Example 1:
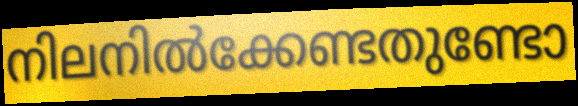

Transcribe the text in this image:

നിലനിൽക്കേണ്ടതുണ്ടോ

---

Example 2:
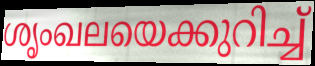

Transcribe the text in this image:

ശൃംഖലയെക്കുറിച്ച്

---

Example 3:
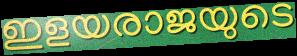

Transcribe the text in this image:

ഇളയരാജയുടെ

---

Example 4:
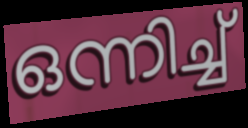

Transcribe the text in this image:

ഒന്നിച്ച്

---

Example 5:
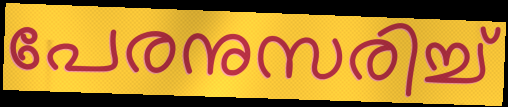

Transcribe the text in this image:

പേരനുസരിച്ച്